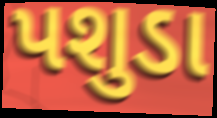
પશુડા